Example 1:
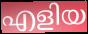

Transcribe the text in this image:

എളിയ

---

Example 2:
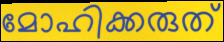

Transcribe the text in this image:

മോഹിക്കരുത്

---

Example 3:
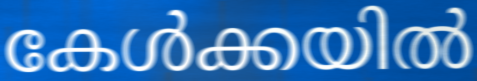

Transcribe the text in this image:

കേൾക്കയിൽ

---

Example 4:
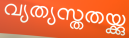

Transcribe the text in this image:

വ്യത്യസ്തതയ്ക്കു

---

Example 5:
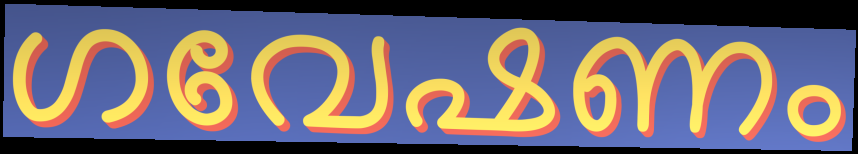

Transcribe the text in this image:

ഗവേഷണം